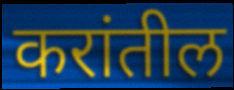
करांतील